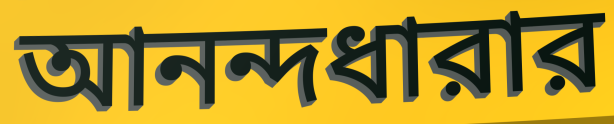
আনন্দধারার